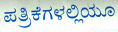
ಪತ್ರಿಕೆಗಳಲ್ಲಿಯೂ